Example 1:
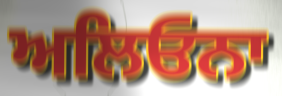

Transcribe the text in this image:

ਅਲਿਓਨਾ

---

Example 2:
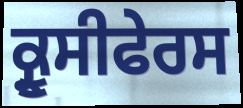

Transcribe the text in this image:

ਕ੍ਰੂਸੀਫੇਰਸ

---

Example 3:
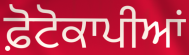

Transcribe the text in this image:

ਫ਼ੋਟੋਕਾਪੀਆਂ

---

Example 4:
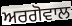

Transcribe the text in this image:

ਅਰਗੋਵਾਲ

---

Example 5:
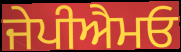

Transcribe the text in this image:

ਜੇਪੀਐਮਓ